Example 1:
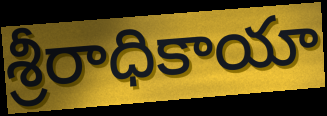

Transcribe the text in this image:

శ్రీరాధికాయా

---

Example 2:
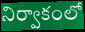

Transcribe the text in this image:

నిర్వాకంలో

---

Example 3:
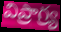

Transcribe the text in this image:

విప్రాగ్ర్య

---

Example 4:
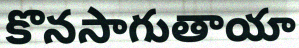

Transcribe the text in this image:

కొనసాగుతాయా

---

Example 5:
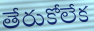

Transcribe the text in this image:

తేరుకోలేక